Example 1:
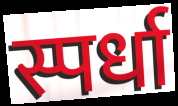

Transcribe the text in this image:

स्पर्धा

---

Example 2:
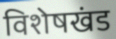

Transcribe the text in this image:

विशेषखंड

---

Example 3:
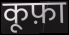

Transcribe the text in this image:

कूफ़ा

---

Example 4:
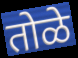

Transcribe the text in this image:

तोळे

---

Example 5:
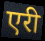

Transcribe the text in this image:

एरी